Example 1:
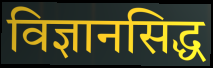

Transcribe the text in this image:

विज्ञानसिद्ध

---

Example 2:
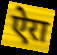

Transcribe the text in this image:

ऐरा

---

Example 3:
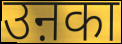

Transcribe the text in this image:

उऩका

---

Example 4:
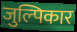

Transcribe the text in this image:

जुल्पिकार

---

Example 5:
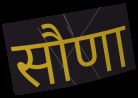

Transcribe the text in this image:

सौणा